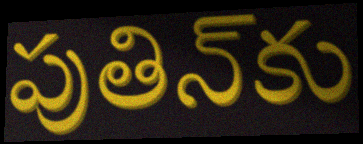
పుతిన్‌కు